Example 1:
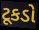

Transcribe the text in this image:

ટૂકડો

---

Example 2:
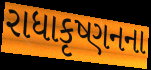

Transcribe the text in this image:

રાધાકૃષ્ણનના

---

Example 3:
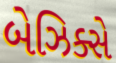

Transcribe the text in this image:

બેઝિક્સે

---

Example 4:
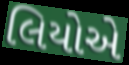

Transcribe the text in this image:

લિયોએ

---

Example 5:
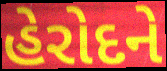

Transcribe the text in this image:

હેરોદને